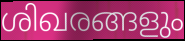
ശിഖരങ്ങളും